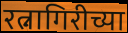
रत्नागिरीच्या